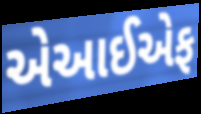
એઆઈએફ